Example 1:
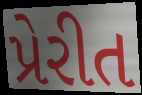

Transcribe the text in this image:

પ્રેરીત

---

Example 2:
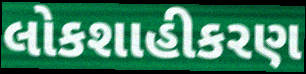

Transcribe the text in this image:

લોકશાહીકરણ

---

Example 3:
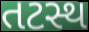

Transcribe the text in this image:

તટસ્થ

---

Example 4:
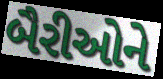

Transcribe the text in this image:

બૈરીઓને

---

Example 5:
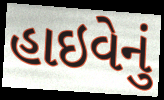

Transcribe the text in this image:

હાઇવેનું